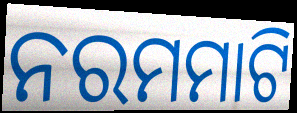
ନରମମାଟି